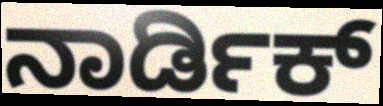
ನಾರ್ಡಿಕ್